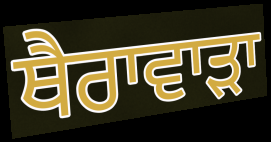
ਥੈਰਾਵਾੜਾ